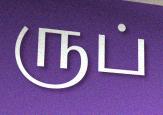
ருப்